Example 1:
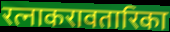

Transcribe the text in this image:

रत्नाकरावतारिका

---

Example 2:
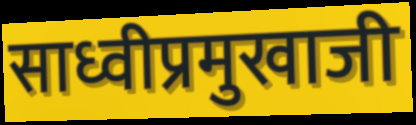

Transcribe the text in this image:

साध्वीप्रमुखाजी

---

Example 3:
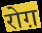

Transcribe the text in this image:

रोग़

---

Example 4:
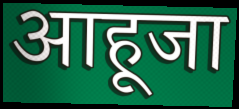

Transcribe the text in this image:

आहूजा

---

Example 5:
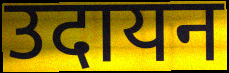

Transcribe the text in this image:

उदायन